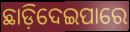
ଛାଡ଼ିଦେଇପାରେ